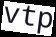
vtp